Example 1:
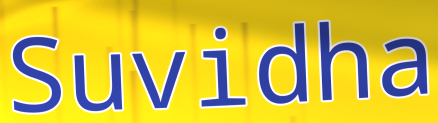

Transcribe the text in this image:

Suvidha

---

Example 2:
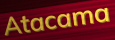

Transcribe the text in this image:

Atacama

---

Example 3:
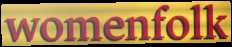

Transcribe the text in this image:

womenfolk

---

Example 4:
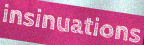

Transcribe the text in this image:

insinuations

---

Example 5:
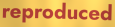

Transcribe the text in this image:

reproduced